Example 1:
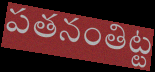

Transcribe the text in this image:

పతనంతిట్ట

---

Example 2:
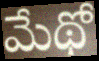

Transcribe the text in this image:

మేథో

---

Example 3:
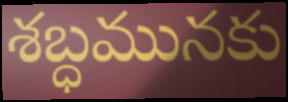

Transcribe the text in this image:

శబ్ధమునకు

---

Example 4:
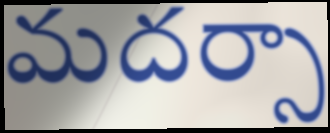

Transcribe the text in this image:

మదర్సా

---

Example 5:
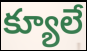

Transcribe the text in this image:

క్యూలే